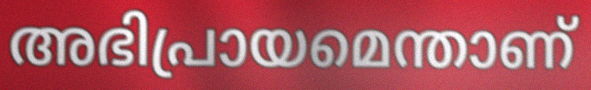
അഭിപ്രായമെന്താണ്